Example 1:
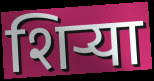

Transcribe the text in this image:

शिर्‍या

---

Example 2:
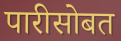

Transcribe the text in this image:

पारीसोबत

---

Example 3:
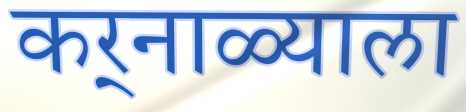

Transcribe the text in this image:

कर्नाळ्याला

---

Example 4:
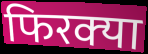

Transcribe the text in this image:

फिरक्या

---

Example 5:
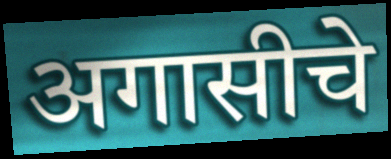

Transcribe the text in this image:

अगासीचे